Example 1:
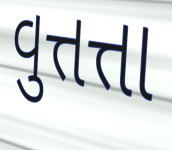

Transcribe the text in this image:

વુત્તત્તા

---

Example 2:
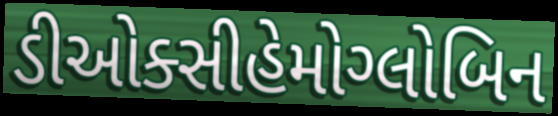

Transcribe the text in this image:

ડીઓક્સીહેમોગ્લોબિન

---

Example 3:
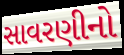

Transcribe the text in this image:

સાવરણીનો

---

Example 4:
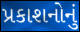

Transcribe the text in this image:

પ્રકાશનોનું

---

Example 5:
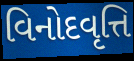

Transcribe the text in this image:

વિનોદવૃત્તિ